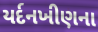
યર્દનખીણના